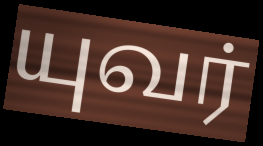
யுவர்